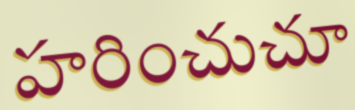
హరించుచూ